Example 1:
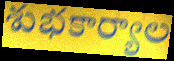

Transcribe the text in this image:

శుభకార్యాల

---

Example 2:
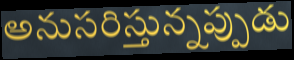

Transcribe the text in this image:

అనుసరిస్తున్నప్పుడు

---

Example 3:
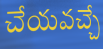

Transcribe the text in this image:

చేయవచ్చే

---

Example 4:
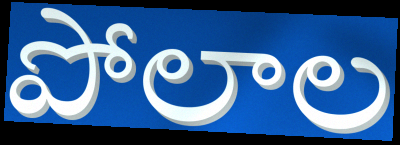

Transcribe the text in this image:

పోలాల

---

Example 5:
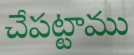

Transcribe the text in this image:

చేపట్టాము